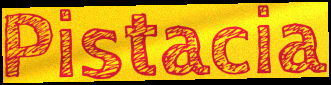
Pistacia